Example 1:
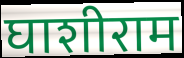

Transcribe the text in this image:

घाशीराम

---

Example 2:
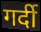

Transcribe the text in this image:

गर्दी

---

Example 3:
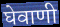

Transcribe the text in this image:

घेवाणी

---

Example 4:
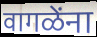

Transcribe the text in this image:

वागळेंना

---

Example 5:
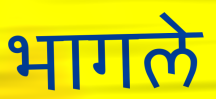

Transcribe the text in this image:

भागले